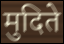
मुदिते